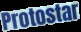
Protostar